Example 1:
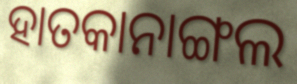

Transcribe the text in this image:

ହାତକାନାଙ୍ଗଲ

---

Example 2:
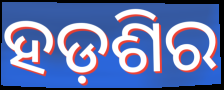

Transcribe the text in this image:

ହଡ଼ଶିର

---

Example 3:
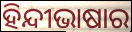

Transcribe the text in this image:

ହିନ୍ଦୀଭାଷାର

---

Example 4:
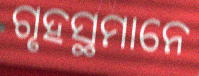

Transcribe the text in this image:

ଗୃହସ୍ଥମାନେ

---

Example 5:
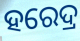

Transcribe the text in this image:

ହରେଦ୍ର